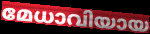
മേധാവിയായ